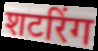
शटरिंग